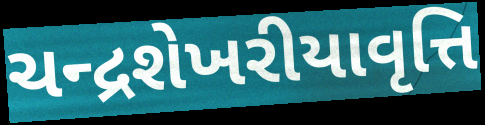
ચન્દ્રશેખરીયાવૃત્તિ